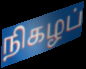
நிகழப்